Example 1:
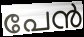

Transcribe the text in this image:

പേൻ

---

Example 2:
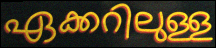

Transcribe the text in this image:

ഏക്കറിലുള്ള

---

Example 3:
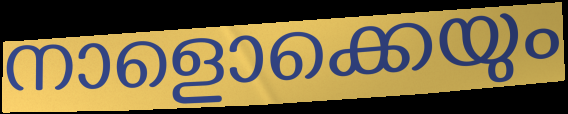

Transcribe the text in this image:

നാളൊക്കെയും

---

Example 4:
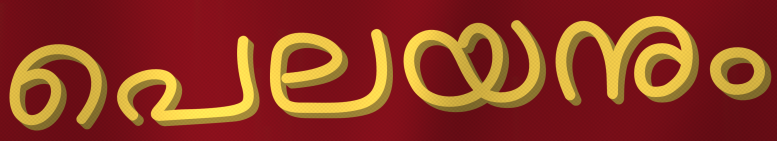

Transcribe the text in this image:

പെലയനും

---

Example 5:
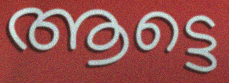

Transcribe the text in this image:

ആട്ടെ